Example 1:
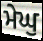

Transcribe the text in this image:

ਮੇਘੁ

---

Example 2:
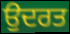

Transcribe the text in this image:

ਉਦਰਤ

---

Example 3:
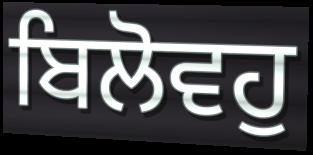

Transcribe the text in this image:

ਬਿਲੋਵਹੁ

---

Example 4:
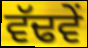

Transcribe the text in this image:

ਵੱਢਵੇਂ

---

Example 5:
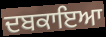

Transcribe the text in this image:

ਦਬਕਾਇਆ